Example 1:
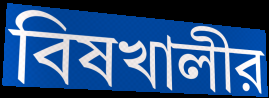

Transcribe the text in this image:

বিষখালীর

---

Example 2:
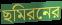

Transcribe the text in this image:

ছমিরনের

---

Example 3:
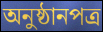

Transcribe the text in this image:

অনুষ্ঠানপত্র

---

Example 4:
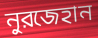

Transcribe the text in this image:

নুরজেহান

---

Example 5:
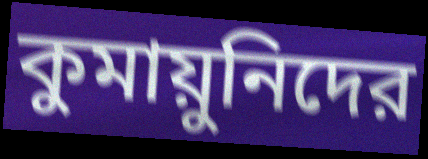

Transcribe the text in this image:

কুমায়ুনিদের